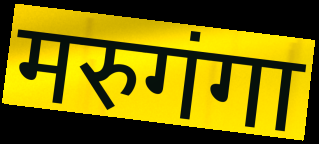
मरुगंगा